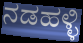
ನಡಹಳ್ಳಿ